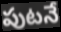
పుటనే